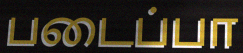
படைப்பா